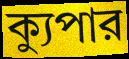
ক্যুপার